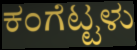
ಕಂಗೆಟ್ಟಳು